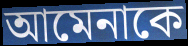
আমেনাকে